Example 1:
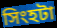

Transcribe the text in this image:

সিংহটা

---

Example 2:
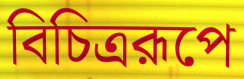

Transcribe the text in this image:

বিচিত্ররূপে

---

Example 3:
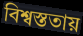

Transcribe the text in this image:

বিশ্বস্ততায়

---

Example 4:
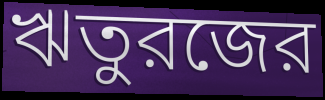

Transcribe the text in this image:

ঋতুরজের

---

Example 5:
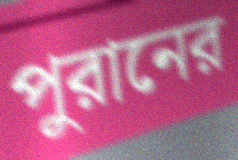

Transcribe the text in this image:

পুরানের